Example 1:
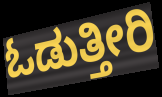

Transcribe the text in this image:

ಓಡುತ್ತೀರಿ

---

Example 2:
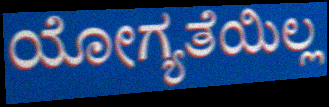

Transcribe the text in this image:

ಯೋಗ್ಯತೆಯಿಲ್ಲ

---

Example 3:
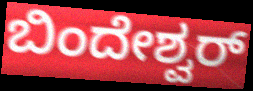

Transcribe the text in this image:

ಬಿಂದೇಶ್ವರ್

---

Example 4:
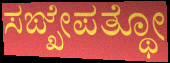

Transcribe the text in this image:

ಸಙ್ಖೇಪತ್ಥೋ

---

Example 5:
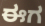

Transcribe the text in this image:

ಈಗ